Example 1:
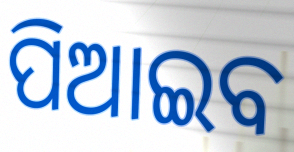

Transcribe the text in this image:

ପିଆଇବ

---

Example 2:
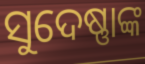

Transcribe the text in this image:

ସୁଦେଷ୍ଣାଙ୍କ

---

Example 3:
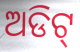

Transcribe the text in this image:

ଅଡିଟ୍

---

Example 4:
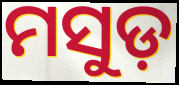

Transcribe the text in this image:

ମସୁଡ଼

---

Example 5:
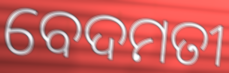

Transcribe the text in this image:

ବେଦମତୀ